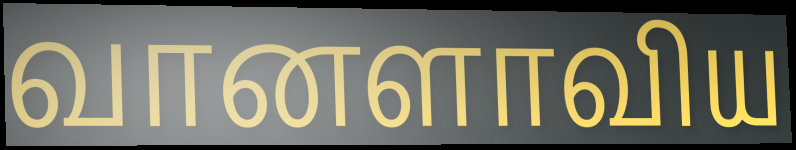
வானளாவிய